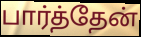
பார்த்தேன்